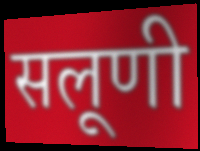
सलूणी